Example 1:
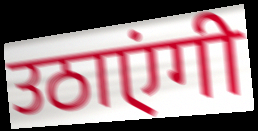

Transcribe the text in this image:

उठाएंगी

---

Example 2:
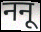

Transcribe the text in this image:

ननू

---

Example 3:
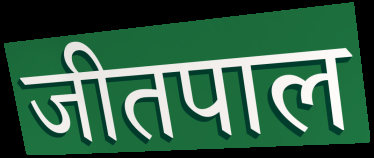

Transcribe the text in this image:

जीतपाल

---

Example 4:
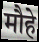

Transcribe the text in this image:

मौहे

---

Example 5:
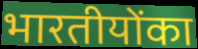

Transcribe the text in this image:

भारतीयोंका